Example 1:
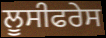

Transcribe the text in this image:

ਲੂਸੀਫਰੇਸ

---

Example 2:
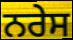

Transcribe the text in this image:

ਨਰੇਸ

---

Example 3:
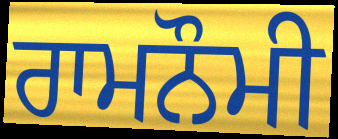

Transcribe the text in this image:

ਰਾਮਨੌਮੀ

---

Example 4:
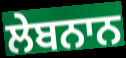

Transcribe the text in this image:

ਲੇਬਨਾਨ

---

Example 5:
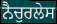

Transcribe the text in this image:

ਨੈਚੁਰਲੇਸ